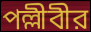
পল্লীবীর